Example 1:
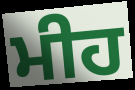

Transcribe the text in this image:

ਮੀਹ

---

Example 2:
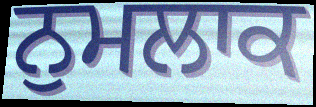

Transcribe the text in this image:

ਨੁਮਲਾਕ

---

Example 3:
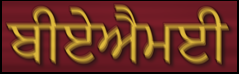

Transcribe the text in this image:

ਬੀਏਐਮਈ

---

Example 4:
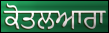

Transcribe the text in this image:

ਕੋਤਲਆਰਾ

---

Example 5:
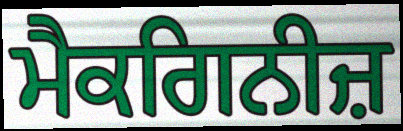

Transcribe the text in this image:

ਮੈਕਗਿਨੀਜ਼